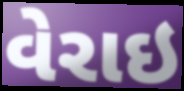
વેરાઇ